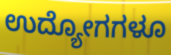
ಉದ್ಯೋಗಗಳೂ